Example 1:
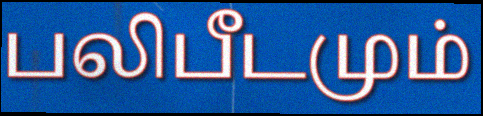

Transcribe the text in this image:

பலிபீடமும்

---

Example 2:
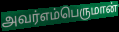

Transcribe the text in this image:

அவர்எம்பெருமான்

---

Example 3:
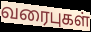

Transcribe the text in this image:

வரைபுகள்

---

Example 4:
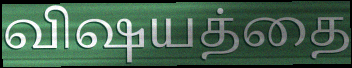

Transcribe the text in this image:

விஷயத்தை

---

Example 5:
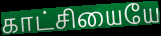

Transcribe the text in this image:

காட்சியையே